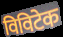
विविटेक